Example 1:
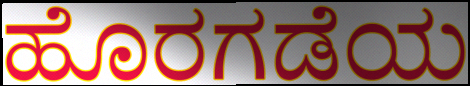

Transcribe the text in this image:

ಹೊರಗಡೆಯ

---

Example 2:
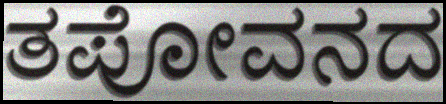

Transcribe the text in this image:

ತಪೋವನದ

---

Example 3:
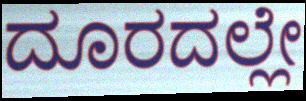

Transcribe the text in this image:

ದೂರದಲ್ಲೇ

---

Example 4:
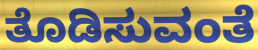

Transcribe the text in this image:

ತೊಡಿಸುವಂತೆ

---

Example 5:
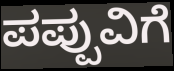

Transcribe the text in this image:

ಪಪ್ಪುವಿಗೆ